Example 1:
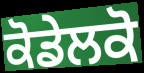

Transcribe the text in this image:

ਕੋਡੇਲਕੋ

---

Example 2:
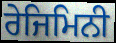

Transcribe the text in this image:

ਰੇਜਿਮਿਨੀ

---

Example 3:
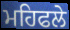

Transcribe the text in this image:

ਮਹਿਫਲੇ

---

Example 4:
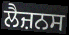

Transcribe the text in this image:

ਲੈਜ਼ਨਸ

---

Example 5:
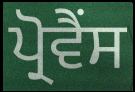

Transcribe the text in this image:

ਪ੍ਰੋਵੈਂਸ